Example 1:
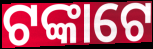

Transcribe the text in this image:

ଟଙ୍କାଟେ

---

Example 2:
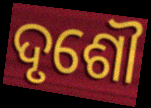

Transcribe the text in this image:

ଦୃଶୌ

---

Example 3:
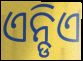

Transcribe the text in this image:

ଏନ୍ଡିଏ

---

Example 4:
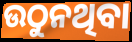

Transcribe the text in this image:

ଉଠୁନଥିବା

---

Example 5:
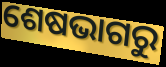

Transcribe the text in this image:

ଶେଷଭାଗରୁ